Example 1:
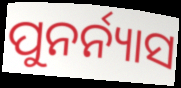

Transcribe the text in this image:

ପୁନର୍ନ୍ୟାସ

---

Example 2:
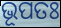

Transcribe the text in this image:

ଭୂପତଃ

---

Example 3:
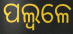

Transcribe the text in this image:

ପଲ୍ୱଳେ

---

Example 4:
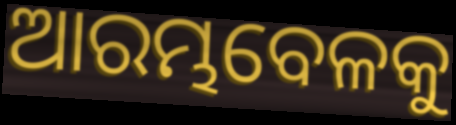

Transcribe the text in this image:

ଆରମ୍ଭବେଳକୁ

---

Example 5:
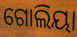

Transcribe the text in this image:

ଗୋଲିୟା